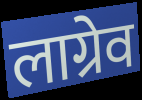
लाग्रेव